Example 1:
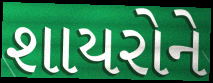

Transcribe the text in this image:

શાયરોને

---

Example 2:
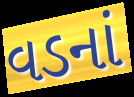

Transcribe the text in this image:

વડનાં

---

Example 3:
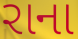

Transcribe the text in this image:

રાના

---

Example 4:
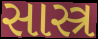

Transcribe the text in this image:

સાસ્ત્ર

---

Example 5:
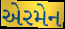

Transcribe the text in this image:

એરમેન